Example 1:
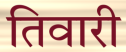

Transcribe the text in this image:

तिवारी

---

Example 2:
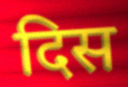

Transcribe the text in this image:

दिस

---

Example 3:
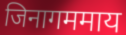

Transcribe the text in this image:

जिनागममाय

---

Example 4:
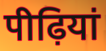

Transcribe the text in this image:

पीढ़ियां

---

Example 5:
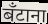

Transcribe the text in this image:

बँटाना